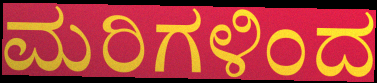
ಮರಿಗಳಿಂದ